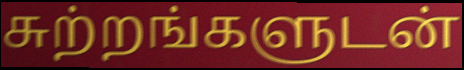
சுற்றங்களுடன்